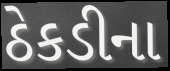
ઠેકડીના